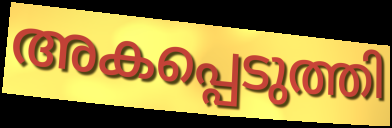
അകപ്പെടുത്തി